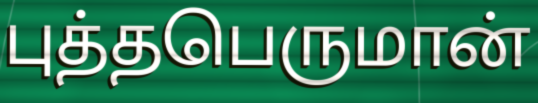
புத்தபெருமான்